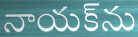
నాయక్‌ను